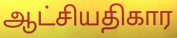
ஆட்சியதிகார